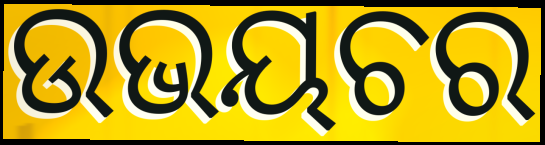
ଉଭୟଚର